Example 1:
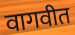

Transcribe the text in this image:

वागवीत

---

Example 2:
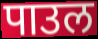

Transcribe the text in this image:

पाउल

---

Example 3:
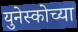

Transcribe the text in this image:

युनेस्कोच्या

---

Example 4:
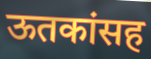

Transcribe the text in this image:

ऊतकांसह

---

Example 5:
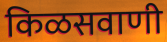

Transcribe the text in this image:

किळसवाणी